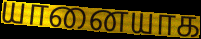
யானையாக